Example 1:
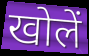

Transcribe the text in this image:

खोलें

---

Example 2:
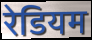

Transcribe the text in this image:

रेडियम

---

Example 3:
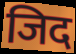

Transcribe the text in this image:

जिद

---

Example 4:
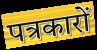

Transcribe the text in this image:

पत्रकारों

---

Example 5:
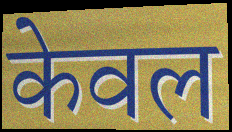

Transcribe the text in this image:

केवल